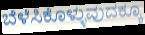
ಬೆಳೆಸಿಕೊಳ್ಳುವುದಕ್ಕೂ